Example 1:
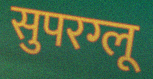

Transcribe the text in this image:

सुपरग्लू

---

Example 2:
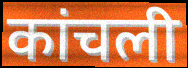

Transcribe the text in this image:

कांचली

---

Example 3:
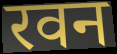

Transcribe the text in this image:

रवन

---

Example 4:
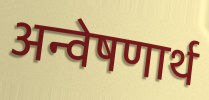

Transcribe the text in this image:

अन्वेषणार्थ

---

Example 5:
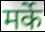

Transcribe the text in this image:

मर्के